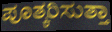
ಪೂತ್ಕರಿಸುತ್ತಾ